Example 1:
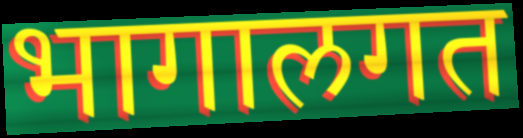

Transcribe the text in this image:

भागालगत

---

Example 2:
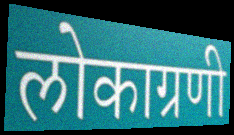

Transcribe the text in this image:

लोकाग्रणी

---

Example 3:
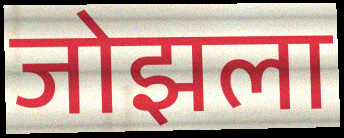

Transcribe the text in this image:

जोझला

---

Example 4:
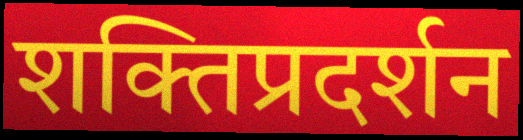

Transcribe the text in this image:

शक्तिप्रदर्शन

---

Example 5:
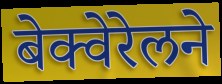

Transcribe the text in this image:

बेक्वेरेलने